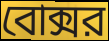
বোক্সর